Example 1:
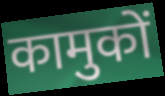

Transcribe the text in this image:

कामुकों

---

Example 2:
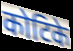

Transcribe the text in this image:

कोटिके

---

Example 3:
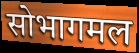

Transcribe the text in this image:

सोभागमल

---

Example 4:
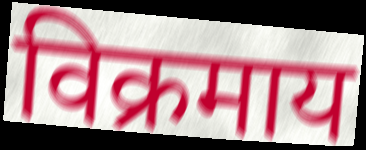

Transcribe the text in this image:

विक्रमाय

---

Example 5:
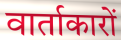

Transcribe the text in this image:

वार्ताकारों